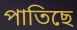
পাতিছে